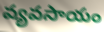
వ్యవసాయం